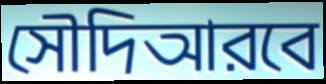
সৌদিআরবে